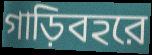
গাড়িবহরে